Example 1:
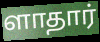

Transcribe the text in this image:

ளாதார்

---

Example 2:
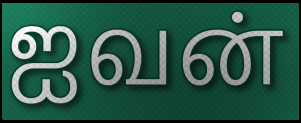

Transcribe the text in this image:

ஐவன்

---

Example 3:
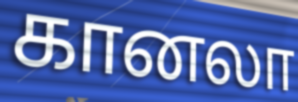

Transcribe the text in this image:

கானலா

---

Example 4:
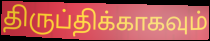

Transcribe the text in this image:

திருப்திக்காகவும்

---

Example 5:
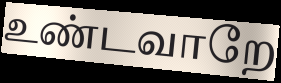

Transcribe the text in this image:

உண்டவாறே